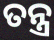
ତନ୍ତ୍ର